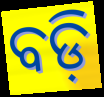
ବଡ଼ି